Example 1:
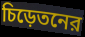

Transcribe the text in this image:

চিড়েতনের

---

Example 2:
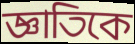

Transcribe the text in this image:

জ্ঞাতিকে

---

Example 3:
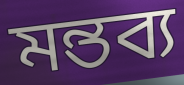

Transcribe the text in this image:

মন্তব্য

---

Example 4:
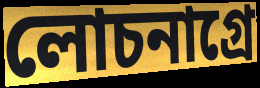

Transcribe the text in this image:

লোচনাগ্রে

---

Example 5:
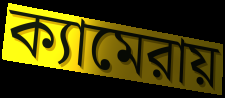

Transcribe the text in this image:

ক্যামেরায়